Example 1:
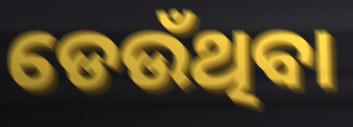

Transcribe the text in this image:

ଡେଉଁଥିବା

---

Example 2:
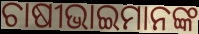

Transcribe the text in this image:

ଚାଷୀଭାଇମାନଙ୍କ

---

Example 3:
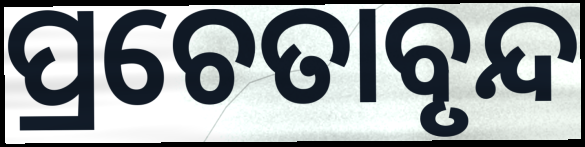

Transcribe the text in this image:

ପ୍ରଚେତାବୃନ୍ଦ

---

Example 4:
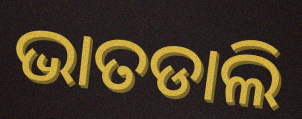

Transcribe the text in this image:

ଭାତଡାଲି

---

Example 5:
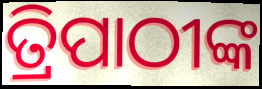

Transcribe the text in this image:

ତ୍ରିପାଠୀଙ୍କ